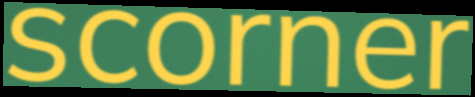
scorner